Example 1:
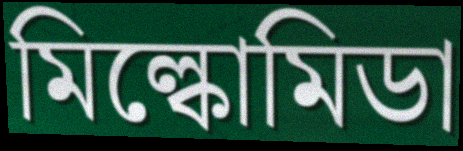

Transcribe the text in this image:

মিল্কোমিডা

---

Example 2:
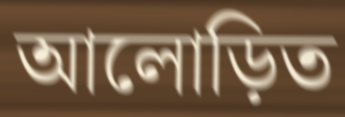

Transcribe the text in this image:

আলোড়িত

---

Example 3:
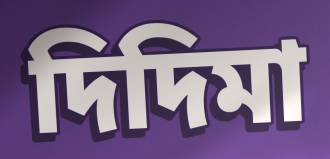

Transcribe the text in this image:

দিদিমা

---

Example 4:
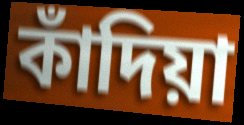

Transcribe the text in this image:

কাঁদিয়া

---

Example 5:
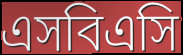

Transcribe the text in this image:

এসবিএসি